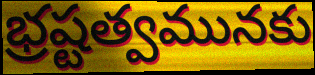
భ్రష్టత్వమునకు